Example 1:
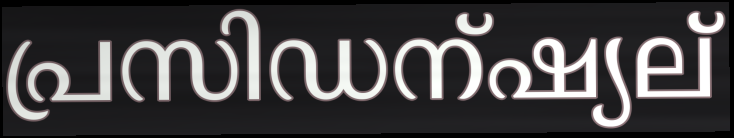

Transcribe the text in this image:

പ്രസിഡന്ഷ്യല്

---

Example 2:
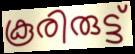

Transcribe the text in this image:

കൂരിരുട്ട്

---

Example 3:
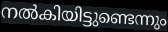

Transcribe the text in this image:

നൽകിയിട്ടുണ്ടെന്നും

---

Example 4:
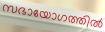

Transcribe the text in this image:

സഭായോഗത്തിൽ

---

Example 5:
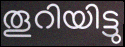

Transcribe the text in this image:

തൂറിയിട്ടു